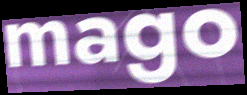
mago